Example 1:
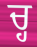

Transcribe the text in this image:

ਚ੍ਹ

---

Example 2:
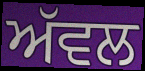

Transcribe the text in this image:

ਅੱਵਲ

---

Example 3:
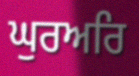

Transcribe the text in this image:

ਘੁਰਅਰਿ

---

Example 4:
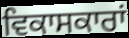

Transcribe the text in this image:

ਵਿਕਾਸਕਾਰਾਂ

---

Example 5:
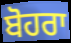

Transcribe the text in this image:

ਬੋਹਰਾ